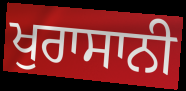
ਖੁਰਾਸਾਨੀ